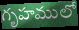
గృహములో